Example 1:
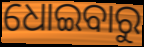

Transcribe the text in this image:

ଧୋଇବାରୁ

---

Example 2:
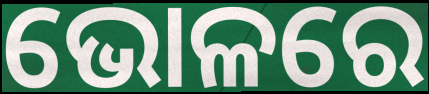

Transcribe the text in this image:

ଭୋଳରେ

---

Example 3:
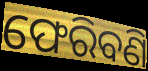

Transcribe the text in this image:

ଫେରିବଣି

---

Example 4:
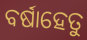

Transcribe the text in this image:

ବର୍ଷାହେତୁ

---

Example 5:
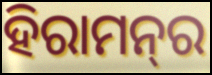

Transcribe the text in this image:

ହିରାମନ୍‍ର